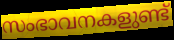
സംഭാവനകളുണ്ട്